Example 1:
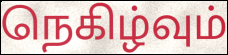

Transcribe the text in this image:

நெகிழ்வும்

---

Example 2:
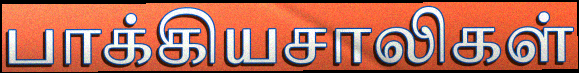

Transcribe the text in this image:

பாக்கியசாலிகள்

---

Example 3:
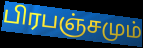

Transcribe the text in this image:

பிரபஞ்சமும்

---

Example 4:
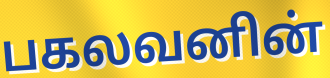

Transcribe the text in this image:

பகலவனின்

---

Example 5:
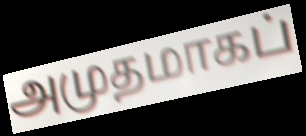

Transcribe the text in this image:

அமுதமாகப்